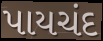
પાયચંદ